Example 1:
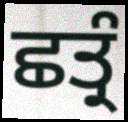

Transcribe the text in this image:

ਛਤ੍ਰੰ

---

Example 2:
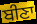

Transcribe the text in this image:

ਬੀਣਾ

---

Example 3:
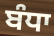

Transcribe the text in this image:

ਬੰਧਾ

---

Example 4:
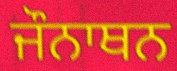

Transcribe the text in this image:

ਜੌਨਾਥਨ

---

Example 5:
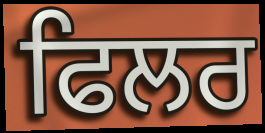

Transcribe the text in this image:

ਫਿਲਰ